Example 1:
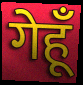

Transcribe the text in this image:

गेहूँ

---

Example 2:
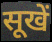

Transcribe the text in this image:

सूखें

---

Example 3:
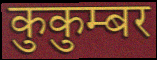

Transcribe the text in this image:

कुकुम्बर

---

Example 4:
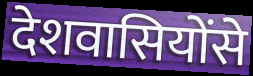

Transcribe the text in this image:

देशवासियोंसे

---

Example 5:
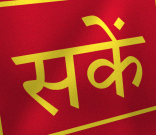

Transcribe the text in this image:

सकें